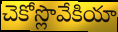
చెకోస్లొవేకియా